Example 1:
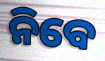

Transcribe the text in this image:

ନିବେ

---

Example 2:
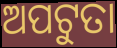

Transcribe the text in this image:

ଅପଟୁତା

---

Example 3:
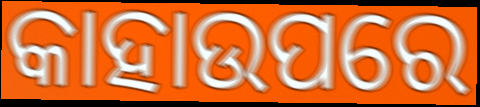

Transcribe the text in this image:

କାହାଉପରେ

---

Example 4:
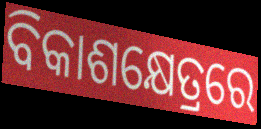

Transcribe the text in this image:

ବିକାଶକ୍ଷେତ୍ରରେ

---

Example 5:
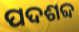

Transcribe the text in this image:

ପଦଶବ୍ଦ